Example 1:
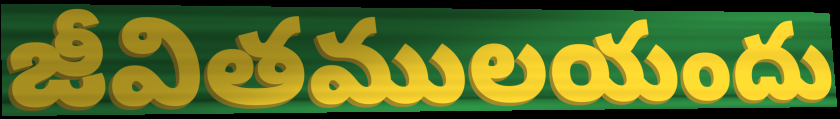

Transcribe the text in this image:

జీవితములయందు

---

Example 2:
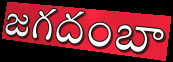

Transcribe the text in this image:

జగదంబా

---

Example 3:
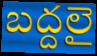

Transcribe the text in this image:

బద్దలై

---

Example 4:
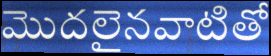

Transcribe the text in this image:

మొదలైనవాటితో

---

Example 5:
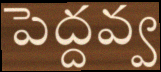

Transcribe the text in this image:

పెద్దవ్వ